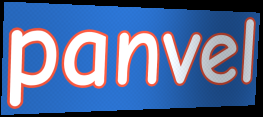
panvel